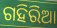
ଗହିରିଆ